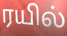
ரயில்